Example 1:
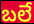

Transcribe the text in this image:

బలే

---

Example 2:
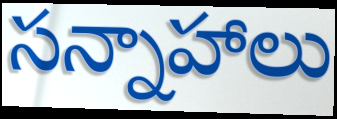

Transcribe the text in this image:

సన్నాహాలు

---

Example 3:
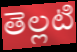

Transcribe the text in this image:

తెల్లటి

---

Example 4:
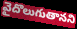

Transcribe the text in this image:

వైదొలుగుతానని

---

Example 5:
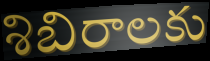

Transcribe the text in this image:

శిబిరాలకు